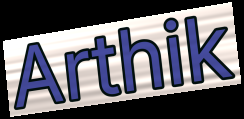
Arthik